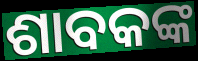
ଶାବକଙ୍କ